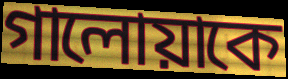
গালোয়াকে